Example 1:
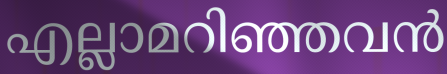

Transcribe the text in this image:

എല്ലാമറിഞ്ഞവൻ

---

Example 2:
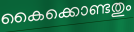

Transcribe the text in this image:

കൈക്കൊണ്ടതും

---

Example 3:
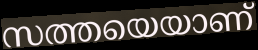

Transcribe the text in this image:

സത്തയെയാണ്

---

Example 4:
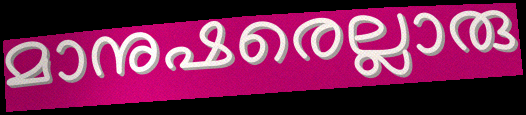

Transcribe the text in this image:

മാനുഷരെല്ലാരു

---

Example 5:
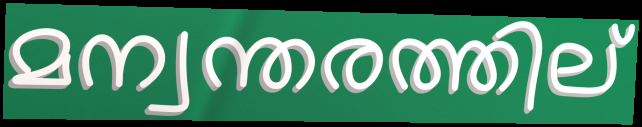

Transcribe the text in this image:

മന്വന്തരത്തില്